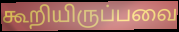
கூறியிருப்பவை